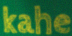
kahe